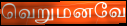
வெறுமனவே